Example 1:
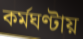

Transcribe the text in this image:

কর্মঘণ্টায়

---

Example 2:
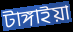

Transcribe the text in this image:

টাঙ্গাইয়া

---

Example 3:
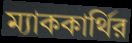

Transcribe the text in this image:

ম্যাককার্থির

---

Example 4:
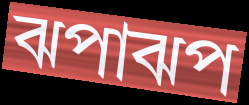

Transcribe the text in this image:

ঝপাঝপ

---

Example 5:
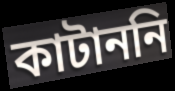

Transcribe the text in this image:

কাটাননি